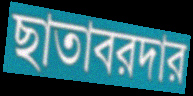
ছাতাবরদার